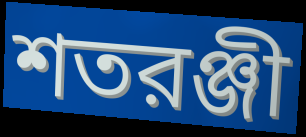
শতরঞ্জী